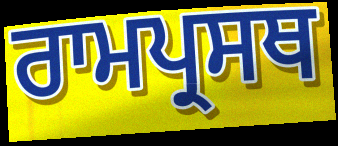
ਰਾਮਪ੍ਰਸਥ